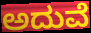
ಅದುವೆ